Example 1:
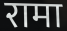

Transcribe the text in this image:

रामा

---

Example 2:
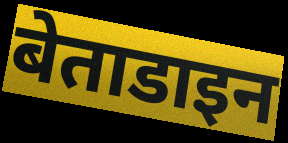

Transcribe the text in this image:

बेताडाइन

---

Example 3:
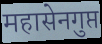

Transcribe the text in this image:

महासेनगुप्त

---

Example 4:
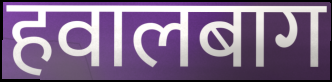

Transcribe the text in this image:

हवालबाग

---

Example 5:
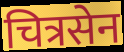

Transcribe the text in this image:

चित्रसेन